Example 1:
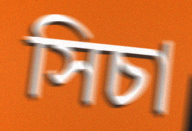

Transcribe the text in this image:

সিচা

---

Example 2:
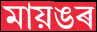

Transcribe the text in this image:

মায়ঙৰ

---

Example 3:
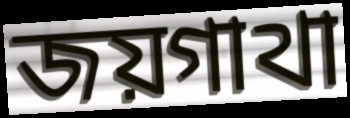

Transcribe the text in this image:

জয়গাথা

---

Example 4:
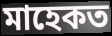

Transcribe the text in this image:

মাহেকত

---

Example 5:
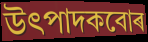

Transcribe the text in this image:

উৎপাদকবোৰ